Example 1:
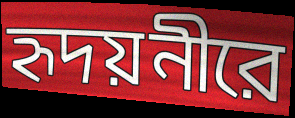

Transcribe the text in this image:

হৃদয়নীরে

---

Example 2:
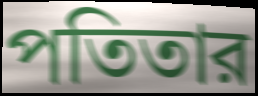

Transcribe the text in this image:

পতিতার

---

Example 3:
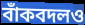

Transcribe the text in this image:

বাঁকবদলও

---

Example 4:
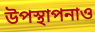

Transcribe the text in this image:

উপস্থাপনাও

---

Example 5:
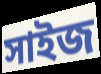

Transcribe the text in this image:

সাইজ